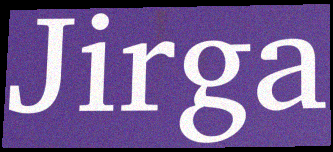
Jirga